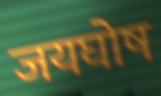
जयघोष